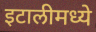
इटालीमध्ये